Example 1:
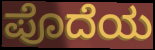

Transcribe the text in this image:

ಪೊದೆಯ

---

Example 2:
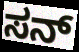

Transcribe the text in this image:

ಸನ್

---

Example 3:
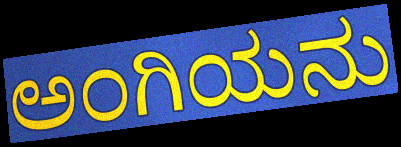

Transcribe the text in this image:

ಅಂಗಿಯನು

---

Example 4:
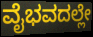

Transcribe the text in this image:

ವೈಭವದಲ್ಲೇ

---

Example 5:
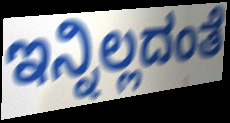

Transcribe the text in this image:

ಇನ್ನಿಲ್ಲದಂತೆ